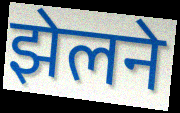
झेलने